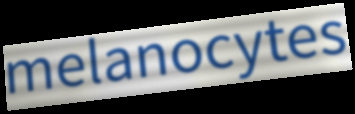
melanocytes